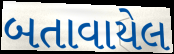
બતાવાયેલ